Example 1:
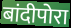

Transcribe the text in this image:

बांदीपोरा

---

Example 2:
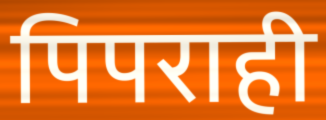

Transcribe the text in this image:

पिपराही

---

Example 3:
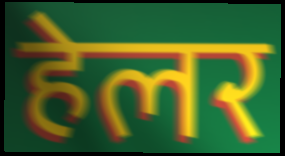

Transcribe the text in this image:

हेलर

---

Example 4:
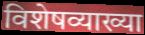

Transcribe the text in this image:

विशेषव्याख्या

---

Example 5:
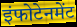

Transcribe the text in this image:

इंफोटेनमेंट